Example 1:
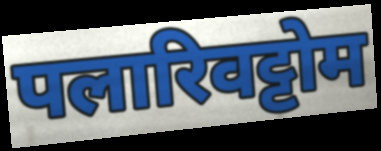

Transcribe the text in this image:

पलारिवट्टोम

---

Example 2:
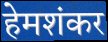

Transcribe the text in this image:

हेमशंकर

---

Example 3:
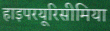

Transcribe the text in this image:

हाइपरयूरिसीमिया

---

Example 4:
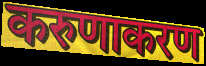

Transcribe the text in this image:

करुणाकरण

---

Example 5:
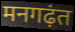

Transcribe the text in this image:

मनगढ़ंत